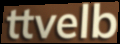
ttvelb